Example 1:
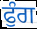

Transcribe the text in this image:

ਫੁੰਗ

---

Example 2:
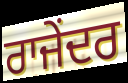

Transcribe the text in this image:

ਰਾਜੇਂਦਰ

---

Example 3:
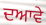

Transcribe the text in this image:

ਦਆਵੇ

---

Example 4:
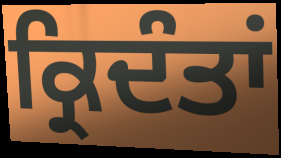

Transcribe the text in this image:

ਕ੍ਰਿਦੰਤਾਂ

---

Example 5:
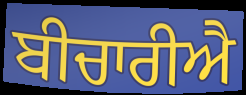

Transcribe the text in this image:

ਬੀਚਾਰੀਐ